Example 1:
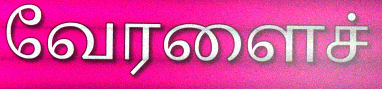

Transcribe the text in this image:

வேரளைச்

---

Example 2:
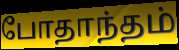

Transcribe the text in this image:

போதாந்தம்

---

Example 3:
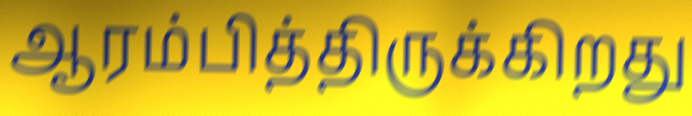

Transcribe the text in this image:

ஆரம்பித்திருக்கிறது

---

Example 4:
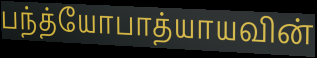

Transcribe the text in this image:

பந்த்யோபாத்யாயவின்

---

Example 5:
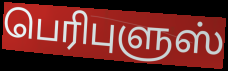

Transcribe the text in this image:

பெரிபுளுஸ்